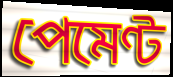
পেমেণ্ট